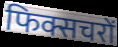
फिक्सचरों